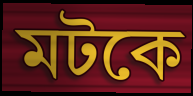
মটকে